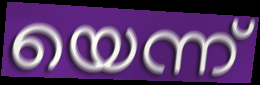
യെന്ന്